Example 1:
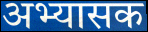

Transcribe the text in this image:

अभ्यासक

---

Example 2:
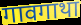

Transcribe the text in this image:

गावगाथा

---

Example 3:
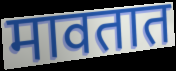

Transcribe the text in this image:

मावतात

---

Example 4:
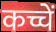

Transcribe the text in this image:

कच्चें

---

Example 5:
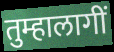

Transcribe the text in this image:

तुम्हालागीं